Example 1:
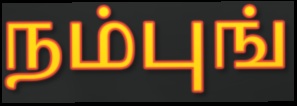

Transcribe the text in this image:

நம்புங்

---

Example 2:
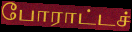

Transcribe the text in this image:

போராட்டச்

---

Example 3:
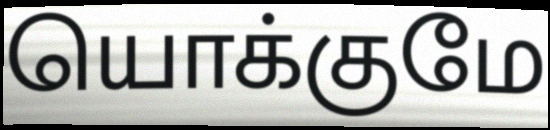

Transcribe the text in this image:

யொக்குமே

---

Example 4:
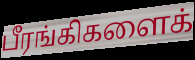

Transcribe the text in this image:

பீரங்கிகளைக்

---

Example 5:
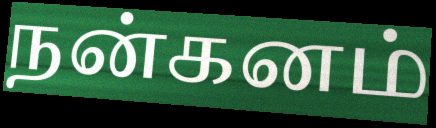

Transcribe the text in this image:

நன்கனம்